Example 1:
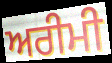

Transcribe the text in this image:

ਅਰੀਮੀ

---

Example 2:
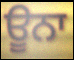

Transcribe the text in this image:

ਊਨਾ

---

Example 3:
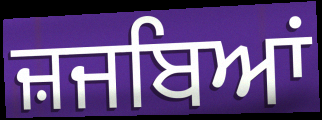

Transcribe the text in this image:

ਜ਼ਜਬਿਆਂ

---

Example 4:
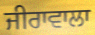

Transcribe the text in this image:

ਜੀਰਾਵਾਲਾ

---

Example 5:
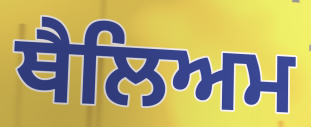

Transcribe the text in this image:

ਥੈਲਿਅਮ